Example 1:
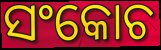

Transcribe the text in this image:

ସଂକୋଚ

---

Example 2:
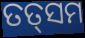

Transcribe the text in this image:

ତତ୍‌ସମ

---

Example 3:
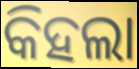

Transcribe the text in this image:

କିହଲା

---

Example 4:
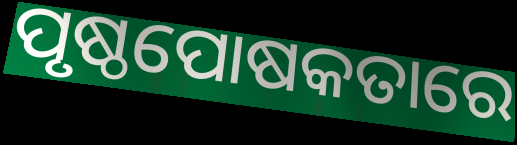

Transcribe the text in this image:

ପୃଷ୍ଠପୋଷକତାରେ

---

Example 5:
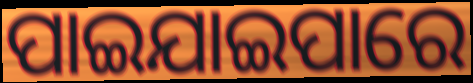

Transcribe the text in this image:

ପାଇଯାଇପାରେ